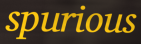
spurious